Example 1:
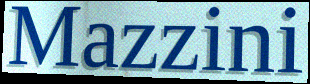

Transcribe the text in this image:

Mazzini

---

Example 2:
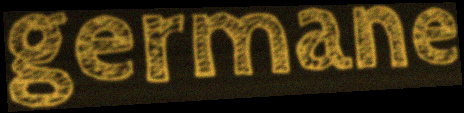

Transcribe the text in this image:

germane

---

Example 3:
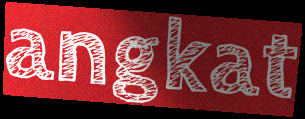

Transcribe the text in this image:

angkat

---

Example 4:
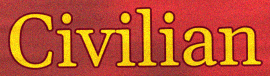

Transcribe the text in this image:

Civilian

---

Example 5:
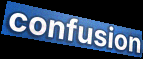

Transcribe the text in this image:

confusion